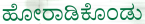
ಹೋರಾಡಿಕೊಂಡು